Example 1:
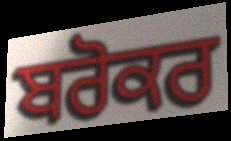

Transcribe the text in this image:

ਬਰੋਕਰ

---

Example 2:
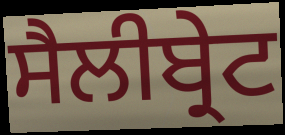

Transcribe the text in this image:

ਸੈਲੀਬ੍ਰੇਟ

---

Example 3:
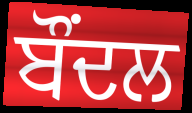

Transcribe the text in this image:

ਬੌਂਦਲ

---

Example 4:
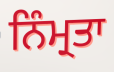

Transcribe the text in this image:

ਨਿੰਮ੍ਰਤਾ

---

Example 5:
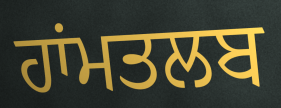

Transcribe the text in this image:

ਹਾਂਮਤਲਬ